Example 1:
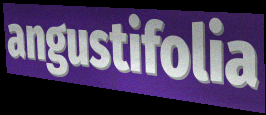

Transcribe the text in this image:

angustifolia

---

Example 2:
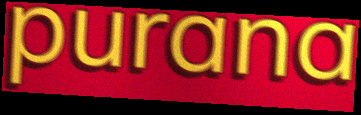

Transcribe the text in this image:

purana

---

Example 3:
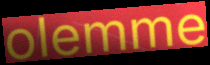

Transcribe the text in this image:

olemme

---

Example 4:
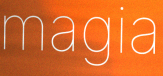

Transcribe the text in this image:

magia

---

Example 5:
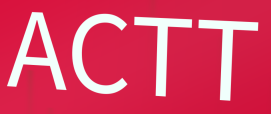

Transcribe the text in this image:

ACTT